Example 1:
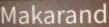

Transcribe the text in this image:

Makarand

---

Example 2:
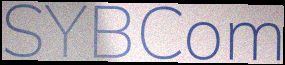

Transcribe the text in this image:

SYBCom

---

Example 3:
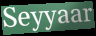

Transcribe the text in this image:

Seyyaar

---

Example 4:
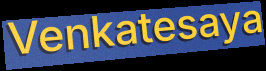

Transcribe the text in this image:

Venkatesaya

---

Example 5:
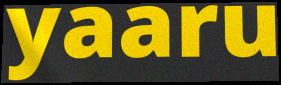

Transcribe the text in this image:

yaaru